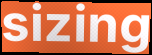
sizing